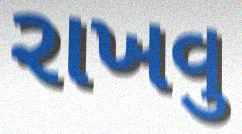
રાખવુ